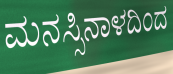
ಮನಸ್ಸಿನಾಳದಿಂದ